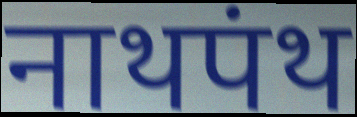
नाथपंथ